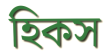
হিকস